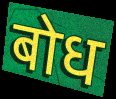
बोध